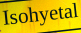
Isohyetal